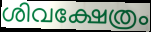
ശിവക്ഷേത്രം